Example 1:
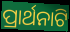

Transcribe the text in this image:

ପ୍ରାର୍ଥନାଟି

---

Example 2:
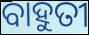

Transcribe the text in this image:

ବାହୁତୀ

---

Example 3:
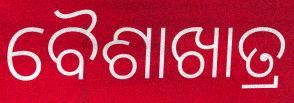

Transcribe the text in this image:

ବୈଶାଖାତ୍ର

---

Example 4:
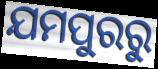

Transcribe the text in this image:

ଯମପୁରରୁ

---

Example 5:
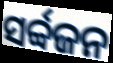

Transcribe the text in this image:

ସର୍ବ୍ବଜନ